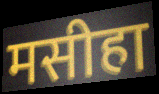
मसीहा